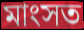
মাংসত